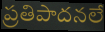
ప్రతిపాదనలే